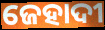
ଜେହାଦୀ